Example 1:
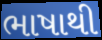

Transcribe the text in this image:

ભાષાથી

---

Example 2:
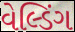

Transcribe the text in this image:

વેલ્ડિંગ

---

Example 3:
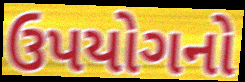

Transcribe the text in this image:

ઉપયોગનો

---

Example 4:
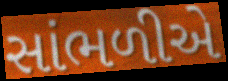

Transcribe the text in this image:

સાંભળીએ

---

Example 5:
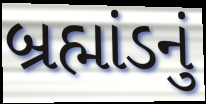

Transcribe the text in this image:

બ્રહ્માંડનું